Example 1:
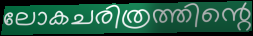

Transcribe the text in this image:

ലോകചരിത്രത്തിന്റെ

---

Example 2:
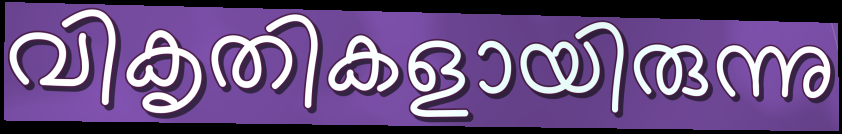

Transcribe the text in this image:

വികൃതികളായിരുന്നു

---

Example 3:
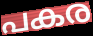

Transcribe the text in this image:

പകര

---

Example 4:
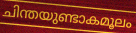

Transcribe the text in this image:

ചിന്തയുണ്ടാകമൂലം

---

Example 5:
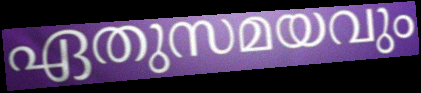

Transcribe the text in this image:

ഏതുസമയവും